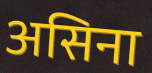
असिना